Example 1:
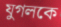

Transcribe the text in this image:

যুগলকে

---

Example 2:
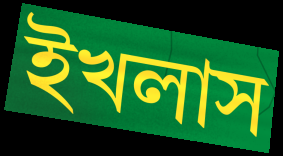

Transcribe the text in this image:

ইখলাস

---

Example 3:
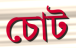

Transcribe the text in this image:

চোট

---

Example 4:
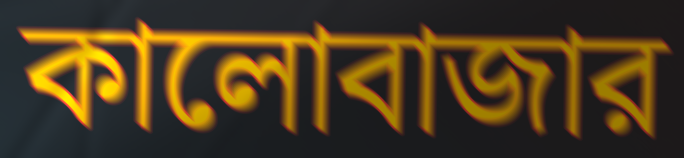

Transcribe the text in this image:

কালোবাজার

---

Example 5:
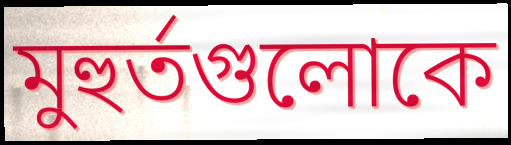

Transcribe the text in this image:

মুহুর্তগুলোকে